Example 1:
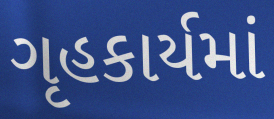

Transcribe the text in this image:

ગૃહકાર્યમાં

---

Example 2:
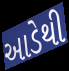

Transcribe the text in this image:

આડેથી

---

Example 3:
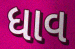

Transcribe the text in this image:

ધાવ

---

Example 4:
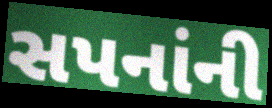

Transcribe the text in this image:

સપનાંની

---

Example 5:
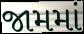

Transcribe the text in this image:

જામમાં